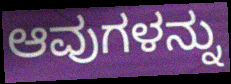
ಆವುಗಳನ್ನು